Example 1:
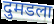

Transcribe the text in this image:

दुमडला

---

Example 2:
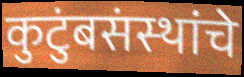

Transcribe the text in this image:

कुटुंबसंस्थांचे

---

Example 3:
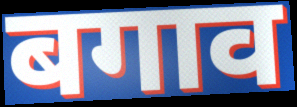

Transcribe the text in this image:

बगाव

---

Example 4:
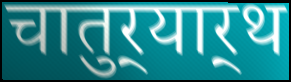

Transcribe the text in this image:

चातुर्यार्थ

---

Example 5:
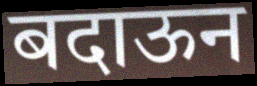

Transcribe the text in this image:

बदाऊन